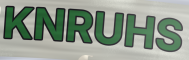
KNRUHS